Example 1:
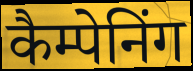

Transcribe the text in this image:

कैम्पेनिंग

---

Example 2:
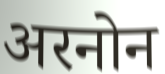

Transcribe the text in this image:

अरनोन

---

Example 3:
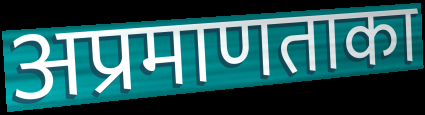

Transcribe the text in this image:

अप्रमाणताका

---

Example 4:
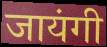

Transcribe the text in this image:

जायंगी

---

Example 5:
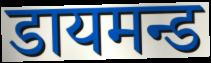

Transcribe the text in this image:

डायमन्ड